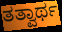
ತತ್ವಾರ್ಥ